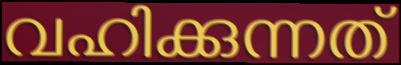
വഹിക്കുന്നത്